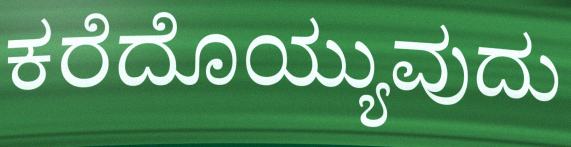
ಕರೆದೊಯ್ಯುವುದು